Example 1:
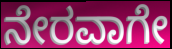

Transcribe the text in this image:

ನೇರವಾಗೇ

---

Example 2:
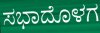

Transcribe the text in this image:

ಸಭಾದೊಳಗ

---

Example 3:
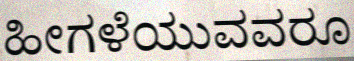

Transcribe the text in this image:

ಹೀಗಳೆಯುವವರೂ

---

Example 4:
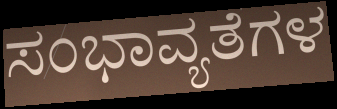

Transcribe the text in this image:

ಸಂಭಾವ್ಯತೆಗಳ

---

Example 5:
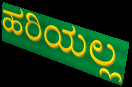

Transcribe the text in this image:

ಹರಿಯಲ್ಲ